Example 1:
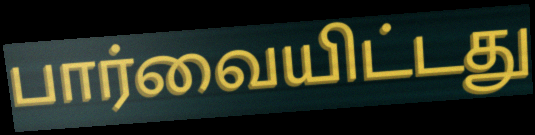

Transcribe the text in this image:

பார்வையிட்டது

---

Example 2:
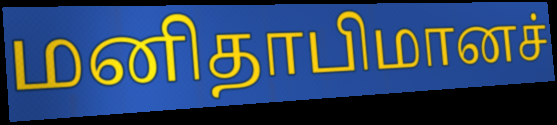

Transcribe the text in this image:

மனிதாபிமானச்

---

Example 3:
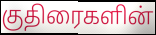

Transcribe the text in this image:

குதிரைகளின்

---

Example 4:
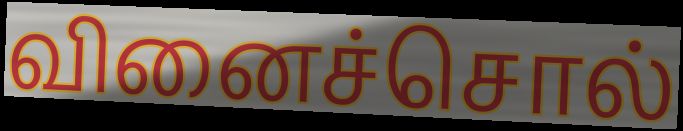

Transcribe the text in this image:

வினைச்சொல்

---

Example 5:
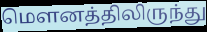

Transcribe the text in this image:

மௌனத்திலிருந்து